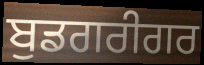
ਬੁਡਗਰੀਗਰ